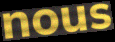
nous